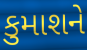
કુમાશને